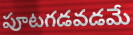
పూటగడవడమే